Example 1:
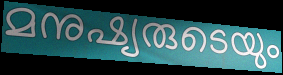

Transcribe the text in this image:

മനുഷ്യരുടെയും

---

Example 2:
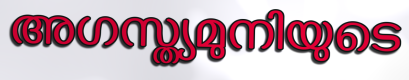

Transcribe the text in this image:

അഗസ്ത്യമുനിയുടെ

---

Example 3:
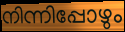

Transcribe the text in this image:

നിന്നിപ്പോഴും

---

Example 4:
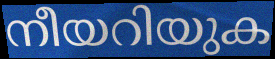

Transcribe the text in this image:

നീയറിയുക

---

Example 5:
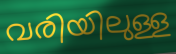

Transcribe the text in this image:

വരിയിലുള്ള